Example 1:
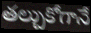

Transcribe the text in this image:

తల్చుకోగానే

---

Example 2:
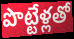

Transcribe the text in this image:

పొట్టేళ్లతో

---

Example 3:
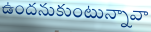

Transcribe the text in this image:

ఉందనుకుంటున్నావా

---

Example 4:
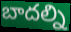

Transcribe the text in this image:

బాదల్ని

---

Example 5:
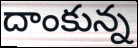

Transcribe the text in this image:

దాంకున్న